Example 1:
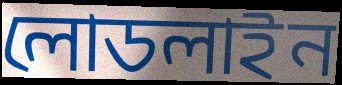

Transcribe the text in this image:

লোডলাইন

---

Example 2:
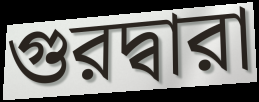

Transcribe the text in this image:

গুরদ্বারা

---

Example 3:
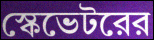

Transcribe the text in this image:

স্কেভেটরের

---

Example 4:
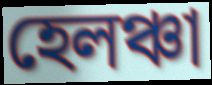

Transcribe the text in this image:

হেলঞ্চা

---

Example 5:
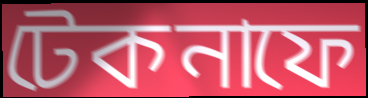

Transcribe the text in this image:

টেকনাফে